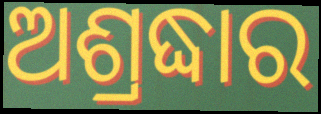
ଅଶ୍ରଦ୍ଧାର